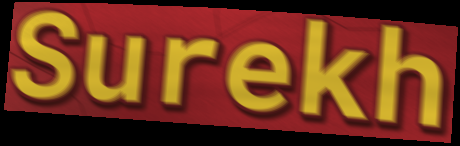
Surekh